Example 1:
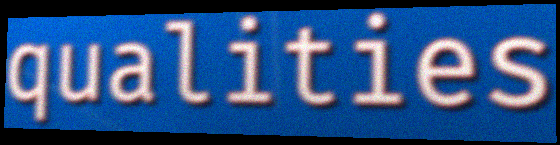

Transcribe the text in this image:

qualities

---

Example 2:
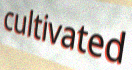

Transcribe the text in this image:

cultivated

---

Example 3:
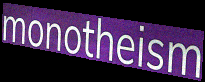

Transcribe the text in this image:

monotheism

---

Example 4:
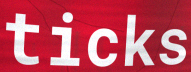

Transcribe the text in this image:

ticks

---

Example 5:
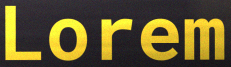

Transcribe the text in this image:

Lorem